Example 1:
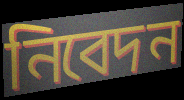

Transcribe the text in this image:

নিবেদন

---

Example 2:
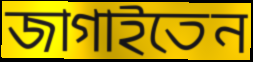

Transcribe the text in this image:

জাগাইতেন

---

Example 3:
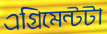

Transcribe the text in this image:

এগ্রিমেন্টটা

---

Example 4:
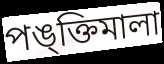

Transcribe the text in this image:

পঙ্ক্তিমালা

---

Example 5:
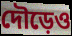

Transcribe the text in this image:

দৌড়েও